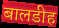
बालडीह